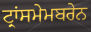
ਟ੍ਰਾਂਸਮੇਮਬਰੇਨ